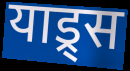
याड्र्स